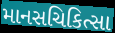
માનસચિકિત્સા